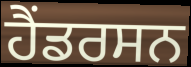
ਹੈਂਡਰਸਨ